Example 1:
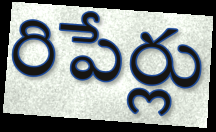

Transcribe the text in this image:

రిపేర్లు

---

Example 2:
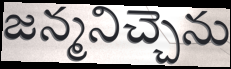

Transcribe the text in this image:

జన్మనిచ్చెను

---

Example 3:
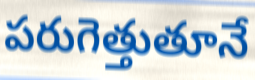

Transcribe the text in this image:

పరుగెత్తుతూనే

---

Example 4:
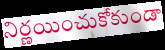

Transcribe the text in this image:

నిర్ణయించుకోకుండా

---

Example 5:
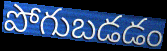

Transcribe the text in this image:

పోగుబడడం